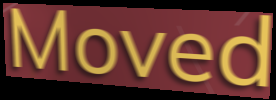
Moved